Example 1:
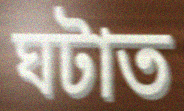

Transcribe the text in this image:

ঘটাত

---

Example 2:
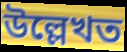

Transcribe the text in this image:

উল্লেখত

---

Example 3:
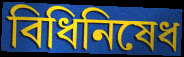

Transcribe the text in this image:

বিধিনিষেধ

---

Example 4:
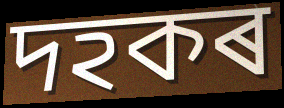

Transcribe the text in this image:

দহকৰ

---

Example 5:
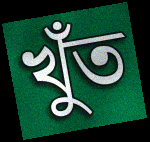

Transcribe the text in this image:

খুঁত